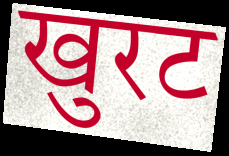
खुरट